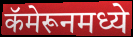
कॅमेरूनमध्ये